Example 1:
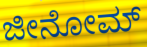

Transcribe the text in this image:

ಜೀನೋಮ್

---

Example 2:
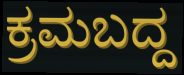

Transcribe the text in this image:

ಕ್ರಮಬದ್ದ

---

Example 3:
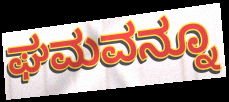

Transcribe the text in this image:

ಘಮವನ್ನೂ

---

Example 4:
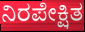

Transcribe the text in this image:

ನಿರಪೇಕ್ಷಿತ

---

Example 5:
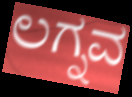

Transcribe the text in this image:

ಲಗ್ನವ